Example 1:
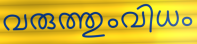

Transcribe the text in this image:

വരുത്തുംവിധം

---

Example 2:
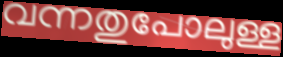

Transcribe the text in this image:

വന്നതുപോലുള്ള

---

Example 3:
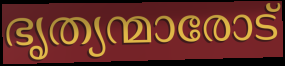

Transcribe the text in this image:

ഭൃത്യന്മാരോട്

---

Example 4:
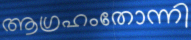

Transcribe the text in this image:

ആഗ്രഹംതോന്നി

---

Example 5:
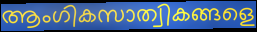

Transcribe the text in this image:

ആംഗികസാത്വികങ്ങളെ